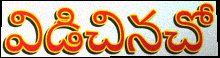
విడిచినచో